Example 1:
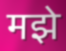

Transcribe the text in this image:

मझे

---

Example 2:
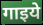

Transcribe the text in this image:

गाइये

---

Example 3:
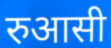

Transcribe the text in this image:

रुआसी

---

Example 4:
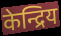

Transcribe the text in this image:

केन्द्रिय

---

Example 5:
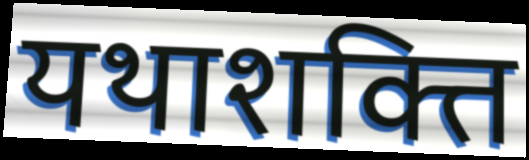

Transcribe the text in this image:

यथाशक्ति